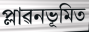
প্লাৱনভূমিত